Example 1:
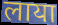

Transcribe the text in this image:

लाया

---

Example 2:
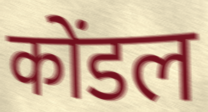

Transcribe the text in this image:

कोंडल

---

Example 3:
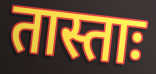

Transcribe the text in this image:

तास्ताः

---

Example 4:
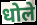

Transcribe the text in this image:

धोले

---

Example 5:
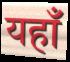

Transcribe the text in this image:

यहाँ